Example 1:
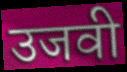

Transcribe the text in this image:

उजवी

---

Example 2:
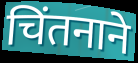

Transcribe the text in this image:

चिंतनाने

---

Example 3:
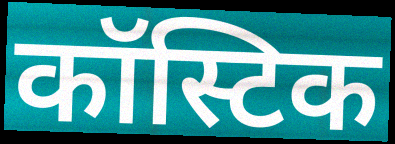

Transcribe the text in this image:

कॉस्टिक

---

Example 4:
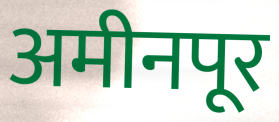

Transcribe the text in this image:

अमीनपूर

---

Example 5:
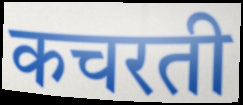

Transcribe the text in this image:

कचरती